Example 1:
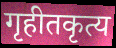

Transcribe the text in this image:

गृहीतकृत्य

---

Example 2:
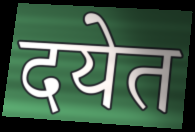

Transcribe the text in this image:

दयेत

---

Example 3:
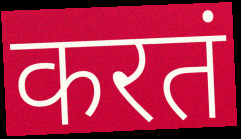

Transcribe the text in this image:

करतं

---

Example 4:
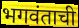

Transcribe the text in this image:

भगवंताची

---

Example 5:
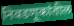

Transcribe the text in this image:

निवडणूकांतील